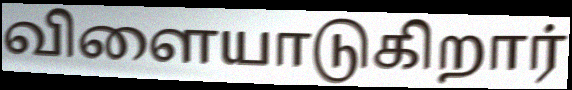
விளையாடுகிறார்